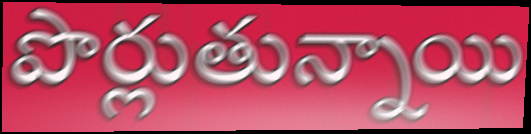
పొర్లుతున్నాయి